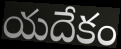
యదేకం